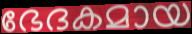
ഭേദകമായ